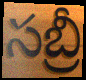
సబ్రీ